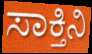
ಸಾಕ್ತಿನಿ